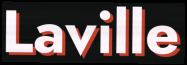
Laville